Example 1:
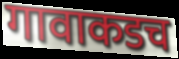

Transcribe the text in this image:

गावाकडच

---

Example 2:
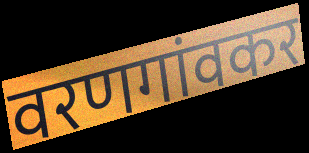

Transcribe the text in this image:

वरणगांवकर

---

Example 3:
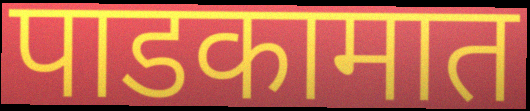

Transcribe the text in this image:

पाडकामात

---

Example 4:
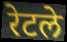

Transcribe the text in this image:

रेटले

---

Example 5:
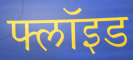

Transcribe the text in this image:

फ्लॉइड